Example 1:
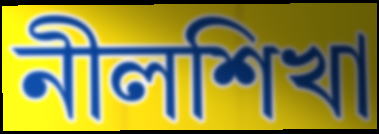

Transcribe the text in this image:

নীলশিখা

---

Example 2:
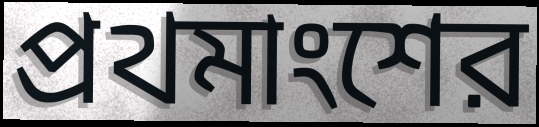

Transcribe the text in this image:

প্রথমাংশের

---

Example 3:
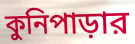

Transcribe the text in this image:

কুনিপাড়ার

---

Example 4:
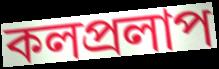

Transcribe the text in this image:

কলপ্রলাপ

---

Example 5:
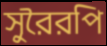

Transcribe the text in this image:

সুরৈরপি